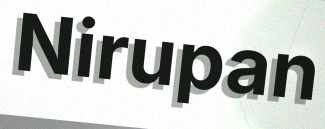
Nirupan